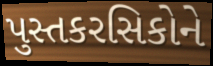
પુસ્તકરસિકોને